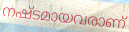
നഷ്ടമായവരാണ്